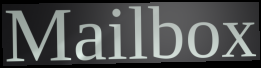
Mailbox